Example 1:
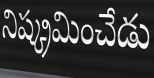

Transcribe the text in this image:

నిష్క్రమించేడు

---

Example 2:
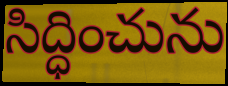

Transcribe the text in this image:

సిద్ధించును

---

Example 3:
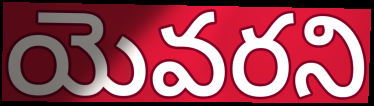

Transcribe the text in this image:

యెవరని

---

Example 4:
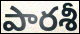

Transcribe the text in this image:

పారశీ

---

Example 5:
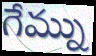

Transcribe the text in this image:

గేమ్ను